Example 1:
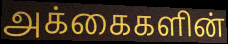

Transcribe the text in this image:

அக்கைகளின்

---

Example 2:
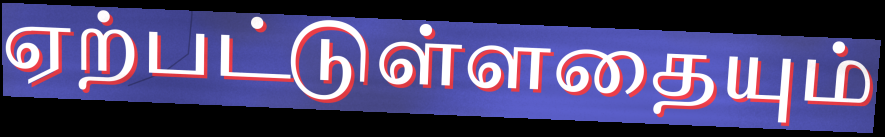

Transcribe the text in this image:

ஏற்பட்டுள்ளதையும்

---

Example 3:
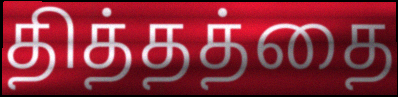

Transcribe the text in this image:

தித்தத்தை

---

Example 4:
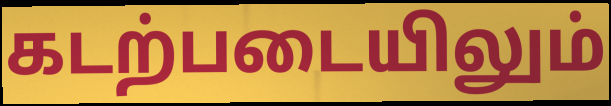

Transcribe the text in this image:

கடற்படையிலும்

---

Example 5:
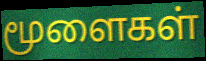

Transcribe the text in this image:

மூளைகள்